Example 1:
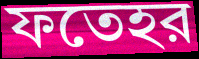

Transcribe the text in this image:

ফতেহর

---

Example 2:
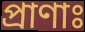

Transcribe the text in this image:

প্রাণাঃ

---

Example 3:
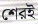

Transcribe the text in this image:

শেরই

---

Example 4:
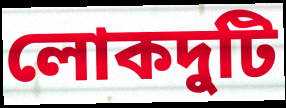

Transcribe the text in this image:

লোকদুটি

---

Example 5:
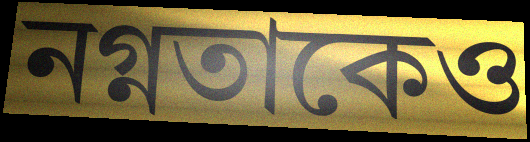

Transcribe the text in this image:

নগ্নতাকেও